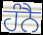
ਹੰਨੈ